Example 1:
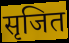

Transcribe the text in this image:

सृजित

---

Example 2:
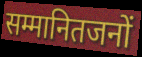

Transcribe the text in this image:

सम्मानितजनों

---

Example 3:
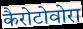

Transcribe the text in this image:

कैरोटोवोरा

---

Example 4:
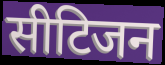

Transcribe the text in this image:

सीटिजन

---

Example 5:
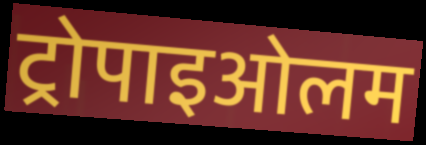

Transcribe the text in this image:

ट्रोपाइओलम